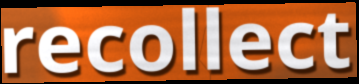
recollect